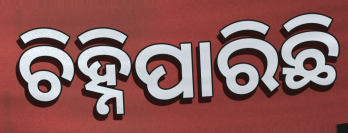
ଚିହ୍ନିପାରିଛି